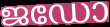
ജഡോ